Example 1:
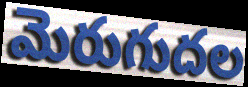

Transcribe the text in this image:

మెరుగుదల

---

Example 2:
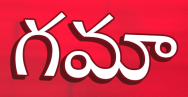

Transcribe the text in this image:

గమా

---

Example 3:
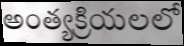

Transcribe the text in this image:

అంత్యక్రియలలో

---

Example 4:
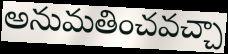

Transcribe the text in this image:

అనుమతించవచ్చా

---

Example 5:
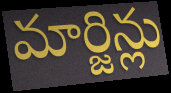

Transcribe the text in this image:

మార్జిన్లు